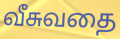
வீசுவதை